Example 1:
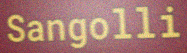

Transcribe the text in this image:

Sangolli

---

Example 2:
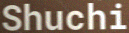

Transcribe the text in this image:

Shuchi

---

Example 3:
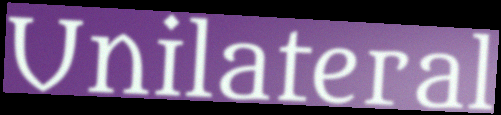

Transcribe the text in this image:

Unilateral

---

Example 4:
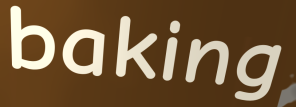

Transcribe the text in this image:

baking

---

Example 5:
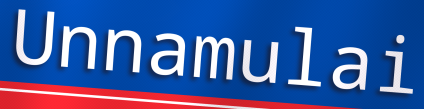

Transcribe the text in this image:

Unnamulai